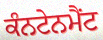
ਕੰਨਟੇਨਮੈਂਟ